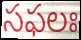
సఫలః